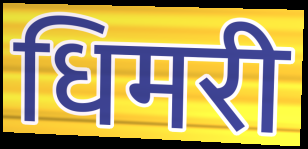
धिमरी